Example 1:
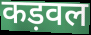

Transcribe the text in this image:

कड़वल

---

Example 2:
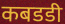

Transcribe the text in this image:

कबडडी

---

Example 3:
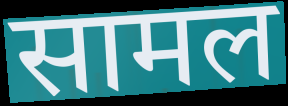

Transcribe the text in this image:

सामल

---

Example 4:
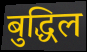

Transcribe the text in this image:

बुद्धिल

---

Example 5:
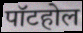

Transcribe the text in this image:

पॉटहोल